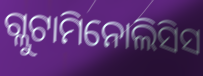
ଗ୍ଲୁଟାମିନୋଲିସିସ